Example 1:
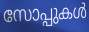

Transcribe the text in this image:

സോപ്പുകൾ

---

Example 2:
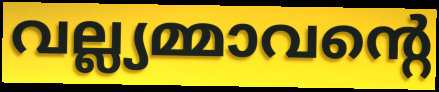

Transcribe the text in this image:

വല്ല്യമ്മാവന്റെ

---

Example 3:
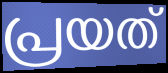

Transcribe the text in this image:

പ്രയത്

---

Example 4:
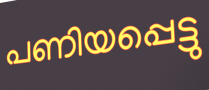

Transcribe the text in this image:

പണിയപ്പെട്ടു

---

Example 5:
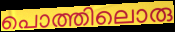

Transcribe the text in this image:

പൊത്തിലൊരു